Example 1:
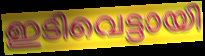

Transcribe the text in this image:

ഇടിവെട്ടായി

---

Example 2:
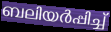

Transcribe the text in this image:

ബലിയർപ്പിച്ച്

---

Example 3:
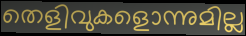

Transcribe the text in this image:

തെളിവുകളൊന്നുമില്ല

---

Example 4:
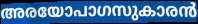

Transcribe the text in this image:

അരയോപാഗസുകാരൻ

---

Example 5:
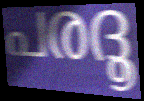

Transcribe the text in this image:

പരദൂ